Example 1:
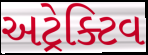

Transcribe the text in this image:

અટ્રેક્ટિવ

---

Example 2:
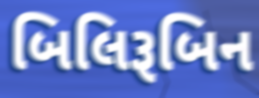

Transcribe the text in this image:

બિલિરૂબિન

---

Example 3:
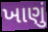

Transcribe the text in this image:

ખાણું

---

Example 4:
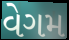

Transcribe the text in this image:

વેગમ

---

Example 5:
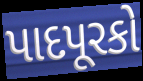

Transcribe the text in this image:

પાદપૂરકો